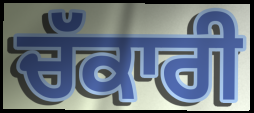
ਚੱਕਾਰੀ